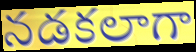
నడకలాగా